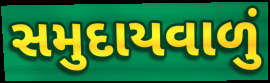
સમુદાયવાળું